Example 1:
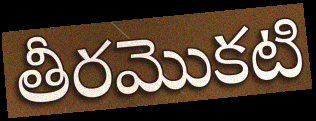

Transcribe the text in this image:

తీరమొకటి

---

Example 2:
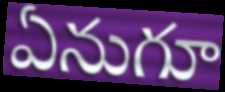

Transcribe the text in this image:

ఏనుగూ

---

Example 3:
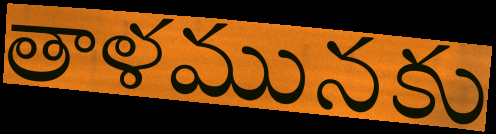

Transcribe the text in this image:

తాళమునకు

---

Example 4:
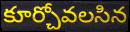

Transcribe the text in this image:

కూర్చోవలసిన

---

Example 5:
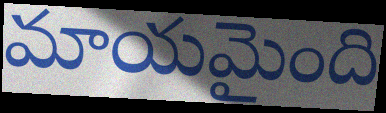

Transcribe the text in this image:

మాయమైంది